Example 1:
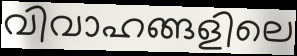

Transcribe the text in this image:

വിവാഹങ്ങളിലെ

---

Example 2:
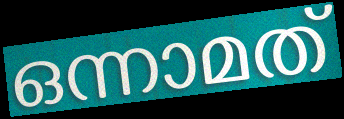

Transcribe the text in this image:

ഒന്നാമത്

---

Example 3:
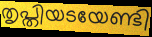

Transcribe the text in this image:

തൃപ്തിയടയേണ്ടി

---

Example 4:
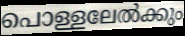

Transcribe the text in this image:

പൊള്ളലേൽക്കും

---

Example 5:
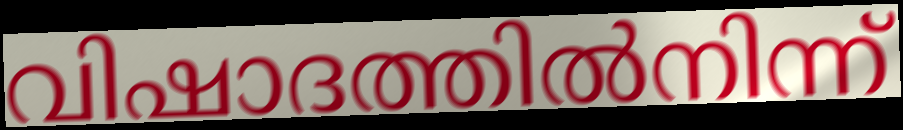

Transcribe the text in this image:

വിഷാദത്തിൽനിന്ന്